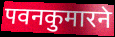
पवनकुमारने